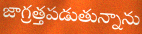
జాగ్రత్తపడుతున్నాను